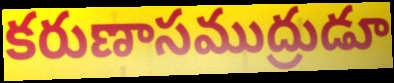
కరుణాసముద్రుడూ